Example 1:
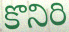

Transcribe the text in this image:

కొనిరి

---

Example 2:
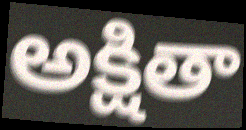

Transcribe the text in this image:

అక్షితా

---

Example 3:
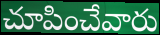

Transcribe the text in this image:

చూపించేవారు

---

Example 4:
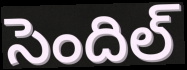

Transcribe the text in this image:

సెందిల్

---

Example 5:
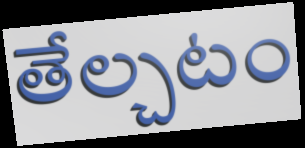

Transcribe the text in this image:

తేల్చటం